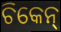
ଚିକେନ୍